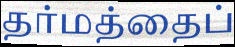
தர்மத்தைப்